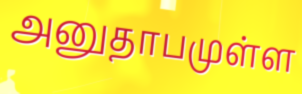
அனுதாபமுள்ள